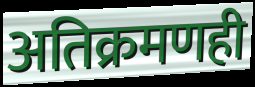
अतिक्रमणही